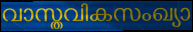
വാസ്തവികസംഖ്യാ